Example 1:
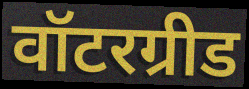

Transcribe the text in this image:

वॉटरग्रीड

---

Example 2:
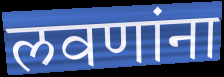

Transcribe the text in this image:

लवणांना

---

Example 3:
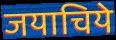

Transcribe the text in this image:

जयाचिये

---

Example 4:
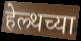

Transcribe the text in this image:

हेल्थच्या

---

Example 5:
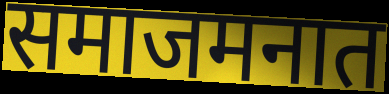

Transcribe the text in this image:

समाजमनात